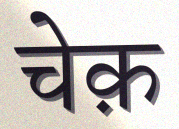
चेक़